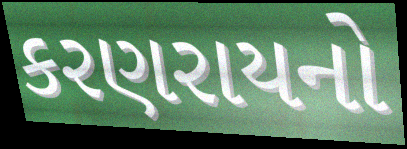
કરણરાયનો